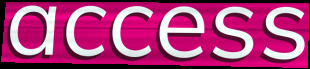
access